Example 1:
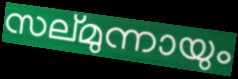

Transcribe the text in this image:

സല്മുന്നായും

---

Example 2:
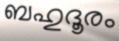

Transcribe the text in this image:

ബഹുദൂരം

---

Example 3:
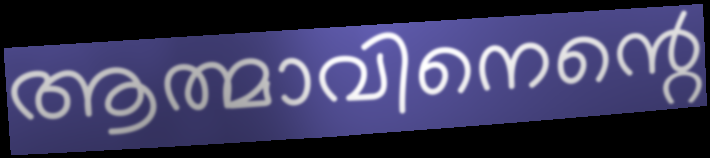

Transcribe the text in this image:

ആത്മാവിനെന്റെ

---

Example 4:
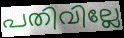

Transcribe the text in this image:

പതിവില്ലേ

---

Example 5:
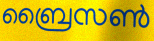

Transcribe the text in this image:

ബ്രൈസൺ